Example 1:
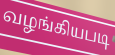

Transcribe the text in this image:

வழங்கியபடி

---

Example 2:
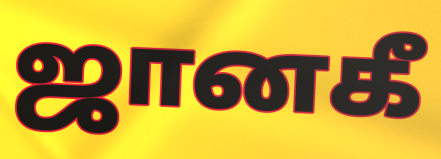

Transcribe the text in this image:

ஜானகீ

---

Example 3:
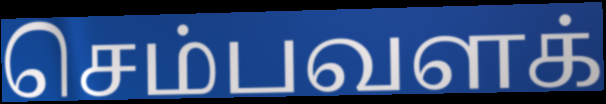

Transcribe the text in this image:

செம்பவளக்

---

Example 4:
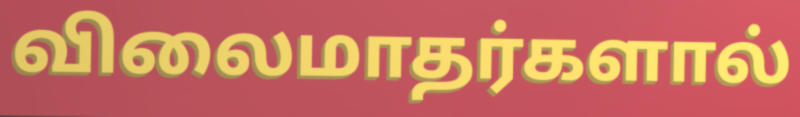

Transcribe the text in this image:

விலைமாதர்களால்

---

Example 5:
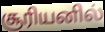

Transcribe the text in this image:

சூரியனில்